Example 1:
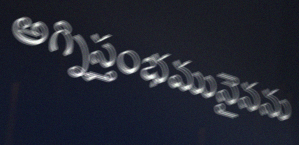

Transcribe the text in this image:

అగ్నిస్తంభమునైనను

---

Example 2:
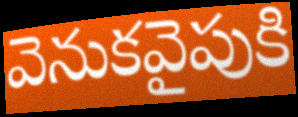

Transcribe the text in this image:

వెనుకవైపుకి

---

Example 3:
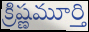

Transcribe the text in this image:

క్రిష్ణమూర్తి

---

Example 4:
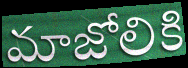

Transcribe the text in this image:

మాజోలికి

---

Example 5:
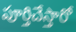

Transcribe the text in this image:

పూర్తిచేస్తారో